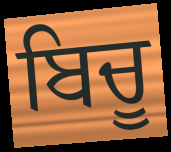
ਬਿਚੂ